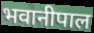
भवानीपाल